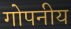
गोपनीय